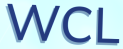
WCL